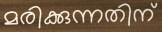
മരിക്കുന്നതിന്